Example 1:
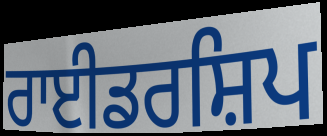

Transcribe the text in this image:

ਰਾਈਡਰਸ਼ਿਪ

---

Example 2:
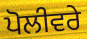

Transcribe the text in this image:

ਪੋਲੀਵਰੇ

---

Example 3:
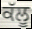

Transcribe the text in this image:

ਕੱਲੂ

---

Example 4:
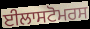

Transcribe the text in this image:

ਈਲਾਸਟੋਮਰਸ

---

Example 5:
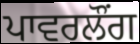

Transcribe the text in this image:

ਪਾਵਰਲੌਂਗ